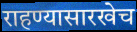
राहण्यासारखेच